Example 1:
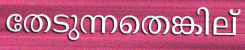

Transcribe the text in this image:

തേടുന്നതെങ്കില്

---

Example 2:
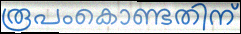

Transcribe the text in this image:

രൂപംകൊണ്ടതിന്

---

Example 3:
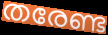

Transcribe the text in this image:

തരേണ്ട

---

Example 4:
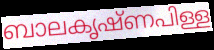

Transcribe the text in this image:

ബാലകൃഷ്ണപിള്ള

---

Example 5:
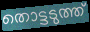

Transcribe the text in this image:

തൊട്ടടുത്ത്